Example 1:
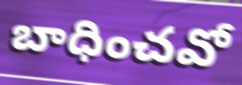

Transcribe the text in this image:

బాధించవో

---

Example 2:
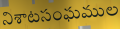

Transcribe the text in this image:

నిశాటసంఘముల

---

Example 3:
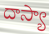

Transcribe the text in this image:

దాస్యా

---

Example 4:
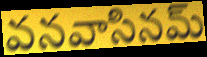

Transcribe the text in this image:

వనవాసినమ్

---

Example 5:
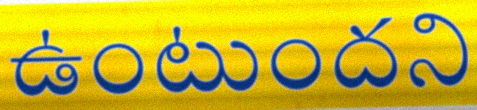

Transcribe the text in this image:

ఉంటుందని